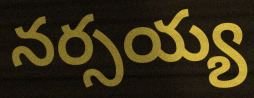
నర్సయ్య